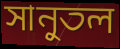
সানুতল